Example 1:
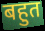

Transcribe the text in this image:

बहुत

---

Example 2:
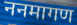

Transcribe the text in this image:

ननमागण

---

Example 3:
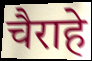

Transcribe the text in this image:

चैराहे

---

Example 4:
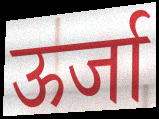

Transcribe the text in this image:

ऊर्जा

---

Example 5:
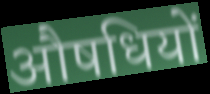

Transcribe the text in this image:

औषधियों